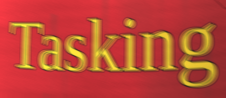
Tasking